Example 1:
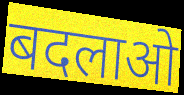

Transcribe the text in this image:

बदलाओ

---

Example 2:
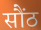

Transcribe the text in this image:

सौंठ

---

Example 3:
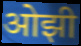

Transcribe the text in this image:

ओझी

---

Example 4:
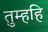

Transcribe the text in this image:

तुम्हहि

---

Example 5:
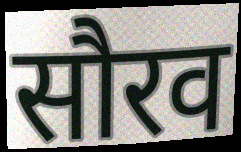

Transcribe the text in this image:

सौरव